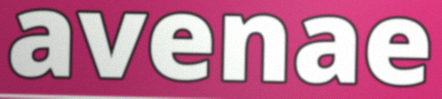
avenae